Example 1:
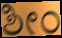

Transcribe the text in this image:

ಶೀಂ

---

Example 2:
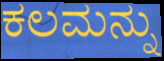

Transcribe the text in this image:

ಕಲಮನ್ನು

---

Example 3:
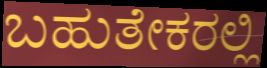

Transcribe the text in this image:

ಬಹುತೇಕರಲ್ಲಿ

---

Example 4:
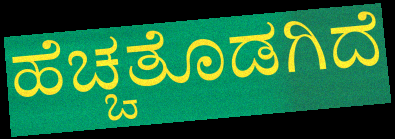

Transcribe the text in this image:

ಹೆಚ್ಚತೊಡಗಿದೆ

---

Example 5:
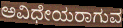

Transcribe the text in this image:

ಅವಿಧೇಯರಾಗುವ